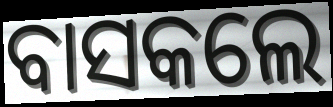
ବାସକଲେ